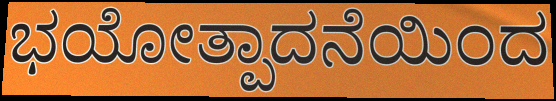
ಭಯೋತ್ಪಾದನೆಯಿಂದ